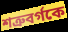
শত্রুবর্গকে